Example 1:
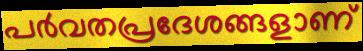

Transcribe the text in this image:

പർവതപ്രദേശങ്ങളാണ്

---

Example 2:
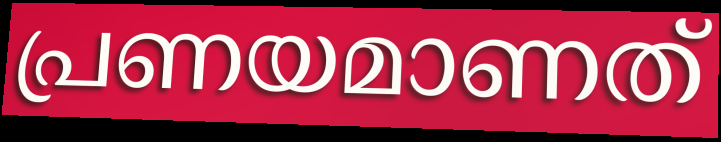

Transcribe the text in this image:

പ്രണയമാണത്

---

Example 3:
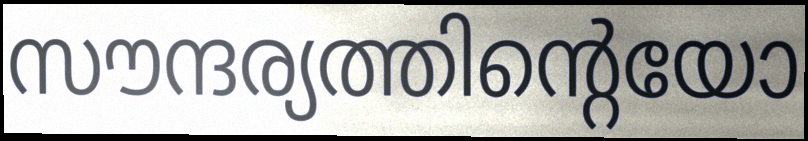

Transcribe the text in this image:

സൗന്ദര്യത്തിന്റെയോ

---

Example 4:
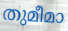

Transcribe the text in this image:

തുമീമാ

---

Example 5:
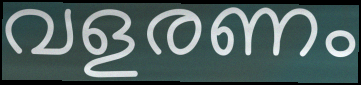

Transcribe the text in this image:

വളരണം